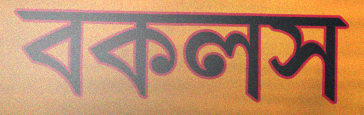
বকলস